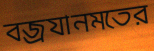
বজ্রযানমতের